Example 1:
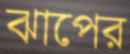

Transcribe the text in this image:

ঝাপের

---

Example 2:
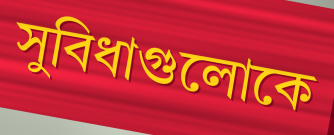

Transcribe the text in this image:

সুবিধাগুলোকে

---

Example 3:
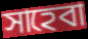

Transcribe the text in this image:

সাহেবা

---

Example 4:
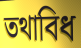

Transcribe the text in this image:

তথাবিধ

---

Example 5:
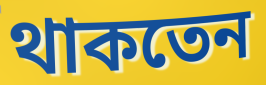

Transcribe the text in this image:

থাকতেন